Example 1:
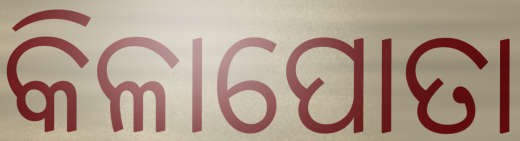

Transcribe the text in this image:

କିଳାପୋତା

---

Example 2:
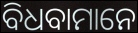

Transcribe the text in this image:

ବିଧବାମାନେ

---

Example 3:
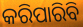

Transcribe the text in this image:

କରିପାରିବି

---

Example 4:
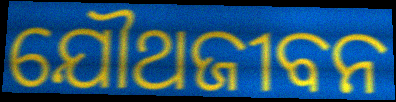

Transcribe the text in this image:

ଯୌଥଜୀବନ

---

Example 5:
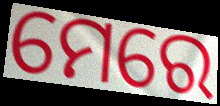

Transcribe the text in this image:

ମେରେ